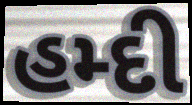
હમ્દી